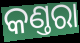
କଣ୍ତରା